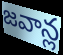
జవాన్ల